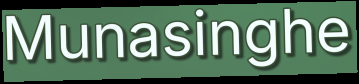
Munasinghe